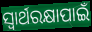
ସ୍ବାର୍ଥରକ୍ଷାପାଇଁ